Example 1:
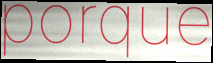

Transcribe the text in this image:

porque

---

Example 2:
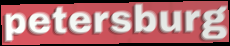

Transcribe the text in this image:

petersburg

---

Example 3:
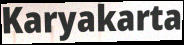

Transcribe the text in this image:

Karyakarta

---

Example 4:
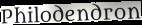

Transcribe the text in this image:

Philodendron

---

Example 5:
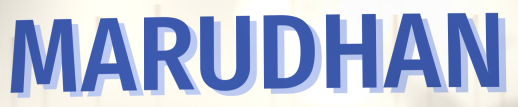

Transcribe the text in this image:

MARUDHAN